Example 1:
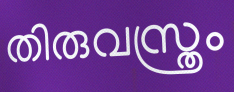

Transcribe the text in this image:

തിരുവസ്ത്രം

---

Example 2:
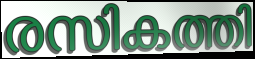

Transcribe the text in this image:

രസികത്തി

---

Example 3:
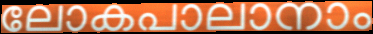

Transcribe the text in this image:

ലോകപാലാനാം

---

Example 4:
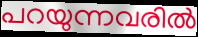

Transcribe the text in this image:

പറയുന്നവരിൽ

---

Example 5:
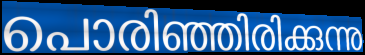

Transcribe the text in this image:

പൊരിഞ്ഞിരിക്കുന്നു